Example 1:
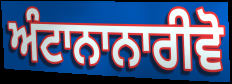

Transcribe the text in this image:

ਅੰਟਾਨਾਨਾਰੀਵੋ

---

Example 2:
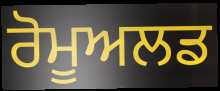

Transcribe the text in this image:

ਰੋਮੂਅਲਡ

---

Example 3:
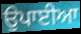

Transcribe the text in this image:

ਉਪਾਈਆ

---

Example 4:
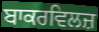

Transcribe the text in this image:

ਬਾਕਰਵਿਲਜ਼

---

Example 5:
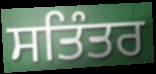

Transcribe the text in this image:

ਸਤਿੰਤਰ